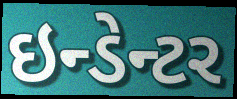
ઇન્ડેન્ટર